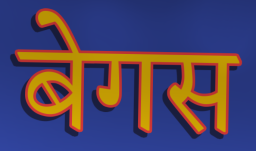
बेगस